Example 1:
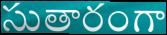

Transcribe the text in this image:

సుతారంగా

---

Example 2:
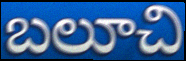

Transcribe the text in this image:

బలూచి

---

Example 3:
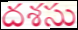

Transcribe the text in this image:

దశసు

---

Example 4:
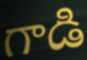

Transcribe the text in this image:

గాడి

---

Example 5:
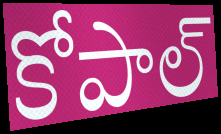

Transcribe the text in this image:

కోపాల్